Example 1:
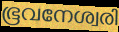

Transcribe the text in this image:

ഭൂവനേശ്വരി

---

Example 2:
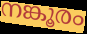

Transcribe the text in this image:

നങ്കൂരം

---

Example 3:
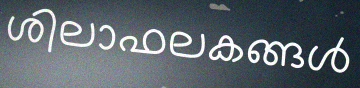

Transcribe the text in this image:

ശിലാഫലകങ്ങൾ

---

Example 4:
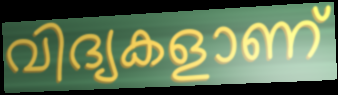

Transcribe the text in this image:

വിദ്യകളാണ്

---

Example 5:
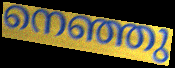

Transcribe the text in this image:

നെഞ്ഞു